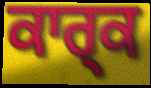
ਕਾਰ੍ਕ